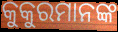
କୁକୁରମାନଙ୍କ